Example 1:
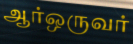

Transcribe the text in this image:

ஆர்ஒருவர்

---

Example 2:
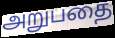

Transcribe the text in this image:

அறுபதை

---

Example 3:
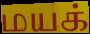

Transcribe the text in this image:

மயக்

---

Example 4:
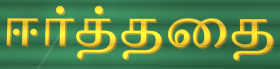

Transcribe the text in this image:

ஈர்த்ததை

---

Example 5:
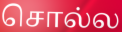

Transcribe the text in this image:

சொல்ல